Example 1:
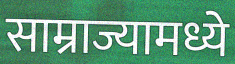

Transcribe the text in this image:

साम्राज्यामध्ये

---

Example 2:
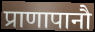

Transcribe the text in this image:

प्राणापानौ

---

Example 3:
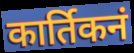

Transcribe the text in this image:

कार्तिकनं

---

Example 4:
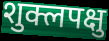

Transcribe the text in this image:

शुक्लपक्षु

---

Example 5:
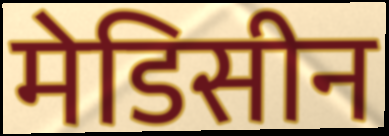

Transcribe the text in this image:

मेडिसीन